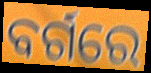
ବର୍ଗରେ